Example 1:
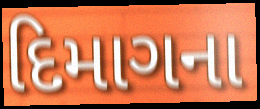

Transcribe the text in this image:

દિમાગના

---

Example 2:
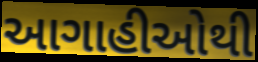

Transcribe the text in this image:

આગાહીઓથી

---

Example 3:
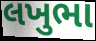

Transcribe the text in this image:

લખુભા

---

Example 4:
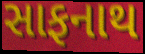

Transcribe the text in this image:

સાફનાથ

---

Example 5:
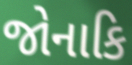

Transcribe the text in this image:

જોનાકિ